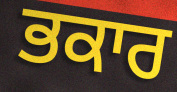
ਭਕਾਰ